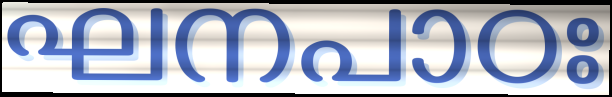
ഘനപാഠഃ